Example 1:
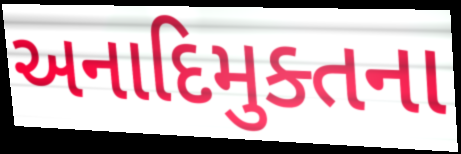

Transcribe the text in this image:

અનાદિમુક્તના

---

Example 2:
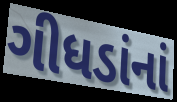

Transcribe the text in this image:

ગીધડાંનાં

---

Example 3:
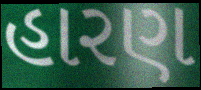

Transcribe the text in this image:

હારણ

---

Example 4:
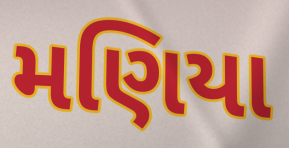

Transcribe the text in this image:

મણિયા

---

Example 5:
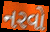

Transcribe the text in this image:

નરવો